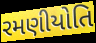
રમણીયોતિ